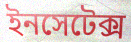
ইনসেটেক্স